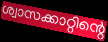
ശ്വാസക്കാറ്റിന്റെ